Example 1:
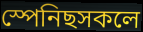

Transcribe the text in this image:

স্পেনিছসকলে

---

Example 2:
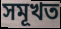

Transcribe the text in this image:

সমূখত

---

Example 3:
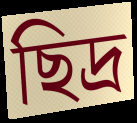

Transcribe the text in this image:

ছিদ্ৰ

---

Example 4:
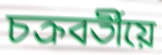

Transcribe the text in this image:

চক্ৰবৰ্তীয়ে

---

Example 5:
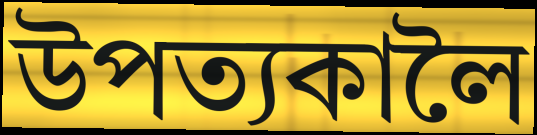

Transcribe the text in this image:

উপত্যকালৈ